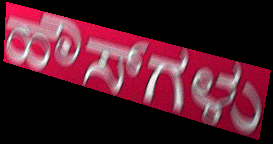
ಹೌಸ್‌ಗಳು